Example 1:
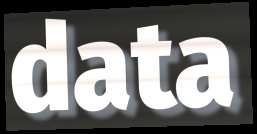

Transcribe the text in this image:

data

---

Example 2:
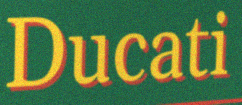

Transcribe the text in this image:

Ducati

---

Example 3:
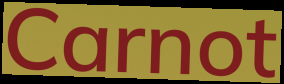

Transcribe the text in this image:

Carnot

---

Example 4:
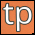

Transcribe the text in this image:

tp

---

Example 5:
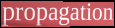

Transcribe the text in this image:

propagation